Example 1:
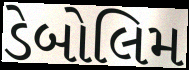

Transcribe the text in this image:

ડેબોલિમ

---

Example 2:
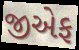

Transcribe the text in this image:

જીએફ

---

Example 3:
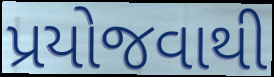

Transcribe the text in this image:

પ્રયોજવાથી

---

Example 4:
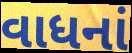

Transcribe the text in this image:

વાધનાં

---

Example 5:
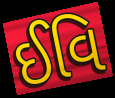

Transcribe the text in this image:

ઈવિ